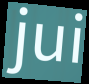
jui